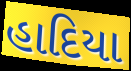
હાદિયા